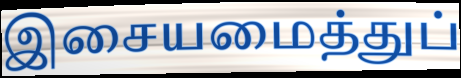
இசையமைத்துப்